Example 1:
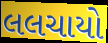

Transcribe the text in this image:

લલચાયો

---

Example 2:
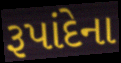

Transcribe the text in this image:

રૂપાંદેના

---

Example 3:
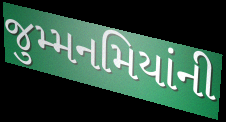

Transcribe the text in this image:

જુમ્મનમિયાંની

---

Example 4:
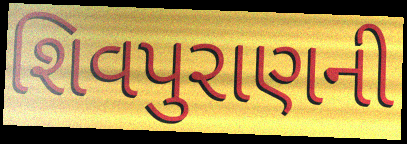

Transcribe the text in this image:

શિવપુરાણની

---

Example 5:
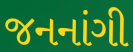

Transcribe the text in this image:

જનનાંગી